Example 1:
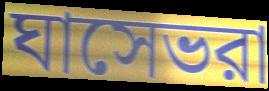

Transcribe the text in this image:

ঘাসেভরা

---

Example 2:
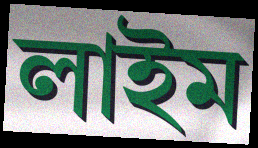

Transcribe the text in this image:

লাইম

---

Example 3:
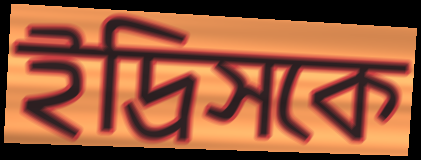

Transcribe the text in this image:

ইদ্রিসকে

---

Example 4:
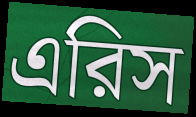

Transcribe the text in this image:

এরিস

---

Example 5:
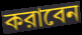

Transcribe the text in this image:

করাবেন